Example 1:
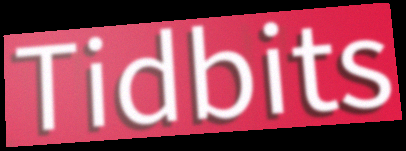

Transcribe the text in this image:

Tidbits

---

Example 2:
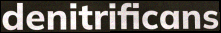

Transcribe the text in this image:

denitrificans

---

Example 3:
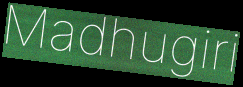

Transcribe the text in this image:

Madhugiri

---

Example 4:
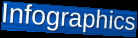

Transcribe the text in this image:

Infographics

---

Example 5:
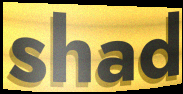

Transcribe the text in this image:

shad